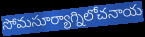
సోమసూర్యాగ్నిలోచనాయ